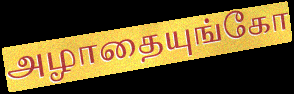
அழாதையுங்கோ